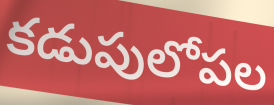
కడుపులోపల